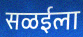
सळईला